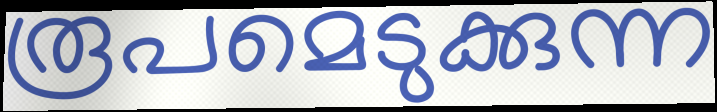
രൂപമെടുക്കുന്ന